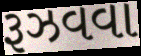
રૂઝવવા